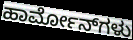
ಹಾರ್ಮೋನ್‌ಗಳು